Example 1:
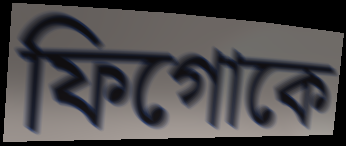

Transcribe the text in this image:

ফিগোকে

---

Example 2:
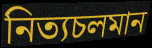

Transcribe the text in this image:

নিত্যচলমান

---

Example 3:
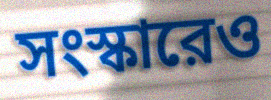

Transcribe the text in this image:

সংস্কারেও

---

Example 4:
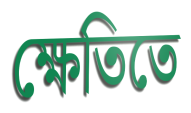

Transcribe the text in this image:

ক্ষেতিতে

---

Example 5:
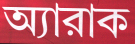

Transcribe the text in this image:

অ্যারাক